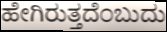
ಹೇಗಿರುತ್ತದೆಂಬುದು